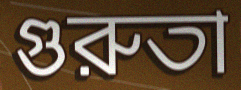
গুৰুতা